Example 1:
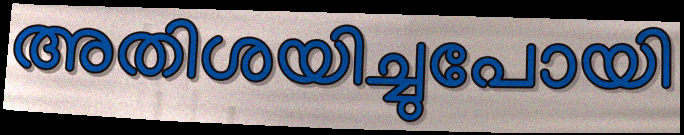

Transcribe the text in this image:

അതിശയിച്ചുപോയി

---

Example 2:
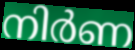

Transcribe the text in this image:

നിർണ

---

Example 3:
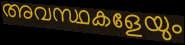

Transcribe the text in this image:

അവസ്ഥകളേയും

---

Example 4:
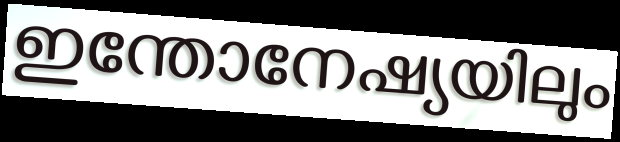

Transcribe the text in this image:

ഇന്തോനേഷ്യയിലും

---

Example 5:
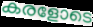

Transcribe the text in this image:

കരളോടെ